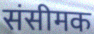
संसीमक